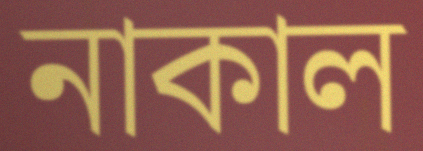
নাকাল